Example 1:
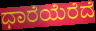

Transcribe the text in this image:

ಧಾರೆಯೆರೆದೆ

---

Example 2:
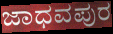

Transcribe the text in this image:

ಜಾಧವಪುರ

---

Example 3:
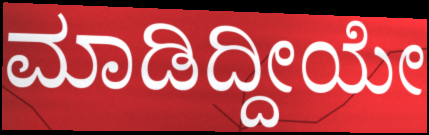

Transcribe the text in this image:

ಮಾಡಿದ್ದೀಯೇ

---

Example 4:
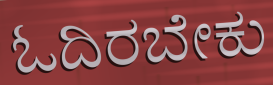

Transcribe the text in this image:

ಓದಿರಬೇಕು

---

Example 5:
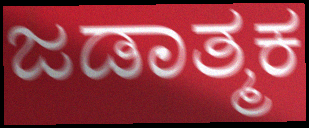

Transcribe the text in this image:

ಜಡಾತ್ಮಕ